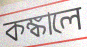
কঙ্কালে